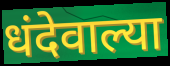
धंदेवाल्या